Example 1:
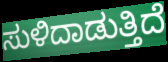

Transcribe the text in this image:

ಸುಳಿದಾಡುತ್ತಿದೆ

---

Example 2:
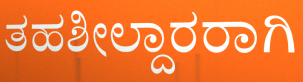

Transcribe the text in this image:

ತಹಶೀಲ್ದಾರರಾಗಿ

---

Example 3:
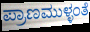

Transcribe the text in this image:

ಪ್ರಾಣಮುಳ್ಳಂತೆ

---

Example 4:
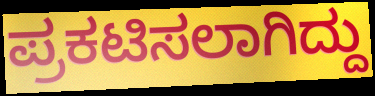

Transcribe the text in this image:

ಪ್ರಕಟಿಸಲಾಗಿದ್ದು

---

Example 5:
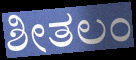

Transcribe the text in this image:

ಶೀತಲಂ